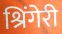
श्रिंगेरी